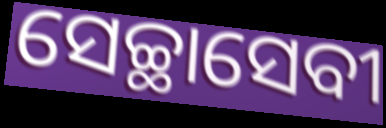
ସେଚ୍ଛାସେବୀ